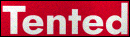
Tented